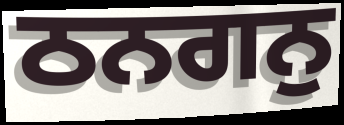
ਠਨਗਨੁ